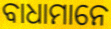
ବାଧାମାନେ